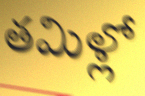
తమిళ్లో